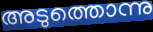
അടുത്തൊന്നു